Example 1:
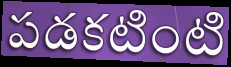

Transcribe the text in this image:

పడకటింటి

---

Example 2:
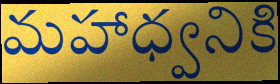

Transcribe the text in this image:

మహాధ్వనికి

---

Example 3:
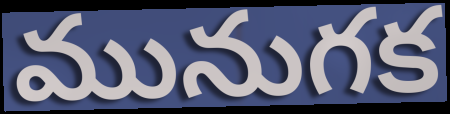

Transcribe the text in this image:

మునుగక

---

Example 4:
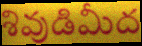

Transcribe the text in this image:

శివుడిమీద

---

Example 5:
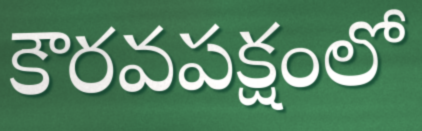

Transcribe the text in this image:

కౌరవపక్షంలో